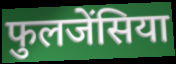
फुलजेंसिया